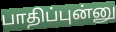
பாதிப்புன்னு